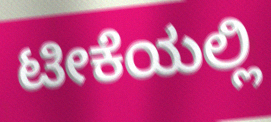
ಟೀಕೆಯಲ್ಲಿ